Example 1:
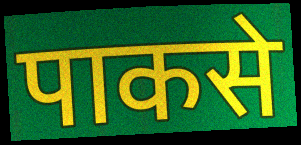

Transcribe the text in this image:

पाकसे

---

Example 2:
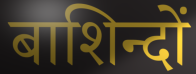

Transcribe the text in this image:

बाशिन्दों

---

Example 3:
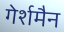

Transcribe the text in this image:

गेर्शमैन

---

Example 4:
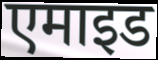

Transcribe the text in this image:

एमाइड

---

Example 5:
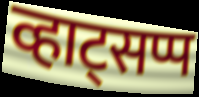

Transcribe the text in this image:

व्हाट्सप्प